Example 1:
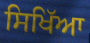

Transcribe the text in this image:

ਸਿਖਿੱਆ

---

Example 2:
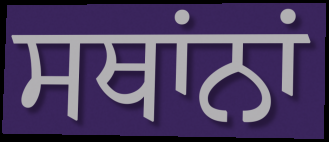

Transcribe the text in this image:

ਸਥਾਂਨਾਂ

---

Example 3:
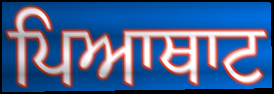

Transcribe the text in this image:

ਪਿਆਥਾਟ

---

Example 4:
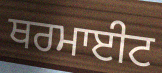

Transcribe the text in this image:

ਥਰਮਾਈਟ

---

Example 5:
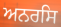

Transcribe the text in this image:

ਅਨਰਸਿ